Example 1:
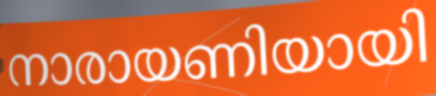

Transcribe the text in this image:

നാരായണിയായി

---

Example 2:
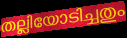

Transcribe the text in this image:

തല്ലിയോടിച്ചതും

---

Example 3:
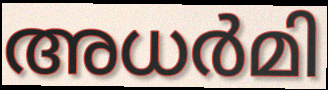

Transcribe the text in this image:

അധർമി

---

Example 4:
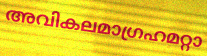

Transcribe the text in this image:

അവികലമാഗ്രഹമറ്റാ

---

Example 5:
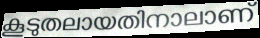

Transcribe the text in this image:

കൂടുതലായതിനാലാണ്